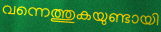
വന്നെത്തുകയുണ്ടായി